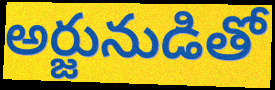
అర్జునుడితో